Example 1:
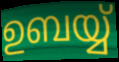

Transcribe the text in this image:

ഉബയ്യ്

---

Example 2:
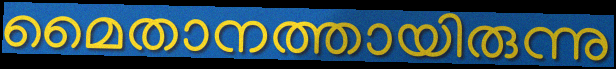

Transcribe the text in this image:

മൈതാനത്തായിരുന്നു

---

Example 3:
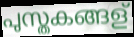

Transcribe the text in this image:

പുസ്തകങ്ങള്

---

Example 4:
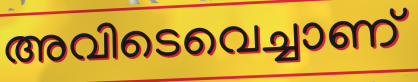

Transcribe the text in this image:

അവിടെവെച്ചാണ്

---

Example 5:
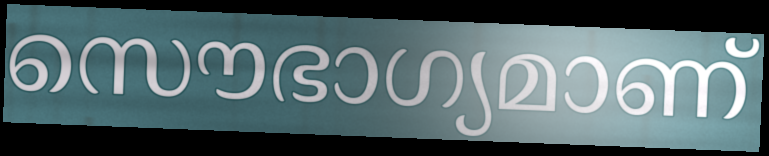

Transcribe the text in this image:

സൌഭാഗ്യമാണ്